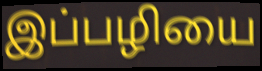
இப்பழியை